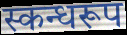
स्कन्धरूप